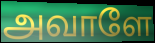
அவாளே